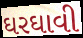
ઘરઘાવી